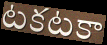
టకటకా